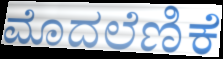
ಮೊದಲೆಣಿಕೆ